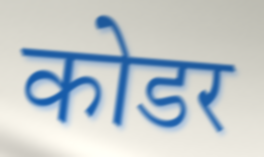
कोडर